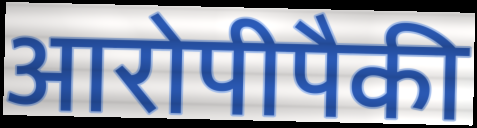
आरोपीपैकी